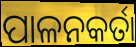
ପାଳନକର୍ତା